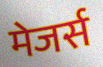
मेजर्स